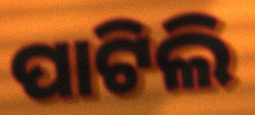
ପାଟିଲି